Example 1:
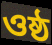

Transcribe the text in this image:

ওষ্ঠ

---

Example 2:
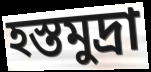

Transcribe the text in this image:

হস্তমুদ্রা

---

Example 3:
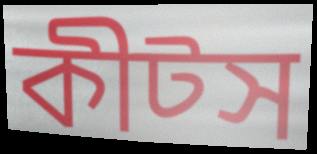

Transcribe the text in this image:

কীট্স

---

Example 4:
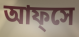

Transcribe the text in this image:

আফ্সে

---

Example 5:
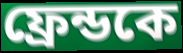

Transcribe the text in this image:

ফ্রেন্ডকে